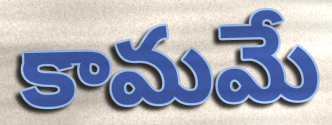
కామమే